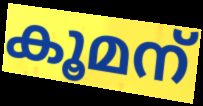
കൂമന്